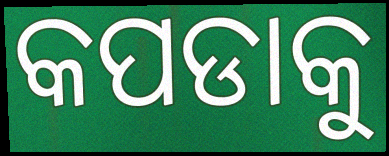
କପଡାକୁ